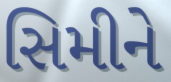
સિમીને